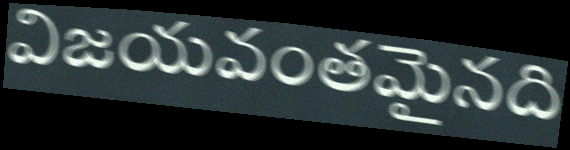
విజయవంతమైనది